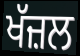
ਖੱਜ਼ਲ